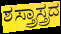
ಶಸ್ತ್ರಾಸ್ತ್ರದ